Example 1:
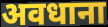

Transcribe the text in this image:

अवधाना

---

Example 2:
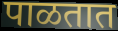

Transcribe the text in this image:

पाळतात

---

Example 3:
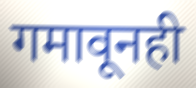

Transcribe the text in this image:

गमावूनही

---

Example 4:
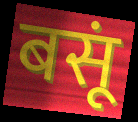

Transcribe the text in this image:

बसूं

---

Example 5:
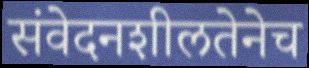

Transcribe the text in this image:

संवेदनशीलतेनेच